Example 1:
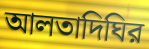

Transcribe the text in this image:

আলতাদিঘির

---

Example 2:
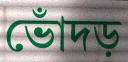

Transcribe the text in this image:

ভোঁদড়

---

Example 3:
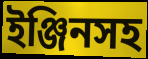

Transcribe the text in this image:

ইঞ্জিনসহ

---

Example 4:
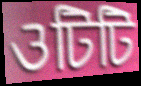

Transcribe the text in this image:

ওটিটি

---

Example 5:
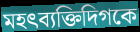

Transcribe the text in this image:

মহৎব্যক্তিদিগকে